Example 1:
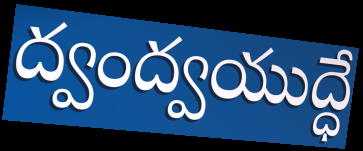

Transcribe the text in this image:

ద్వంద్వయుద్ధే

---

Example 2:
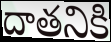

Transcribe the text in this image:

దాతనికి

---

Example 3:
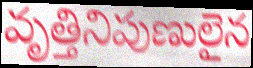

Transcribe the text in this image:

వృత్తినిపుణులైన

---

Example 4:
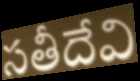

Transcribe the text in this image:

సతీదేవి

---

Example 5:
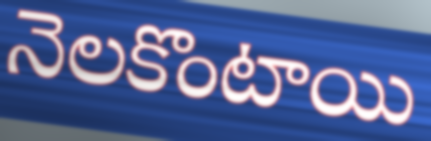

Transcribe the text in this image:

నెలకొంటాయి